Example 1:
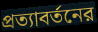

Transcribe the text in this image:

প্রত্যাবর্তনের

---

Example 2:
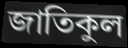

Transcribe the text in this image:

জাতিকুল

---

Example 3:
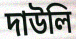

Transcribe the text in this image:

দাউলি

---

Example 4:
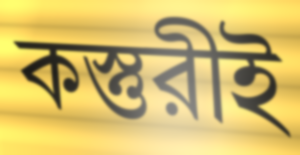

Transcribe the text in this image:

কস্তুরীই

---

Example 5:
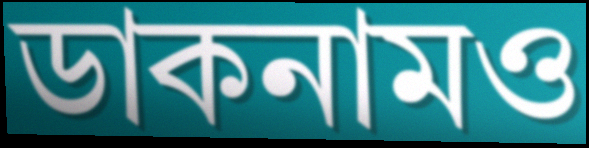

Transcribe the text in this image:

ডাকনামও